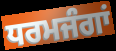
ਧਰਮਜੰਗਾਂ